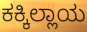
ಕಕ್ಕಿಲ್ಲಾಯ